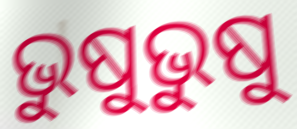
ଭୁଷୁଭୁଷୁ